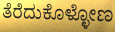
ತೆರೆದುಕೊಳ್ಳೋಣ